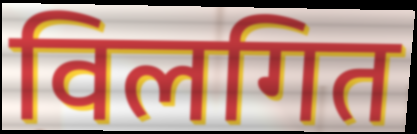
विलगित